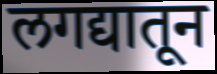
लगद्यातून